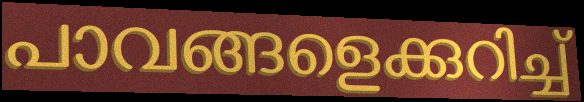
പാവങ്ങളെക്കുറിച്ച്